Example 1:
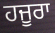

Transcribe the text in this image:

ਹਜੂਰਾ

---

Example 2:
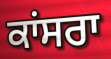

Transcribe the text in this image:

ਕਾਂਸਰਾ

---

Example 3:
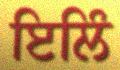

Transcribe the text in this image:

ਇਲਿੰ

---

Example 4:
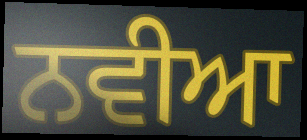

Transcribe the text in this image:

ਨਵੀਆ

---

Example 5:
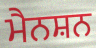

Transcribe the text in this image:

ਮੈਨਸ਼ਨ